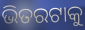
ଭିତରଟାକୁ